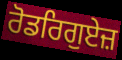
ਰੋਡਰਿਗੁਏਜ਼